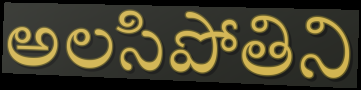
అలసిపోతిని